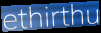
ethirthu